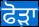
ਫੋੜਾ